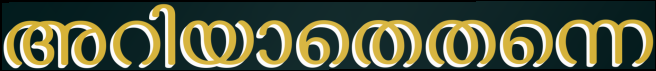
അറിയാതെതന്നെ